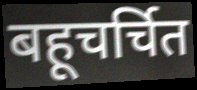
बहूचर्चित